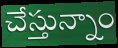
చేస్తున్నాం